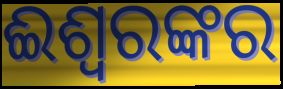
ଈଶ୍ୱରଙ୍କର